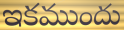
ఇకముందు